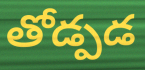
తోడ్పడ